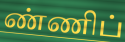
ண்ணிப்